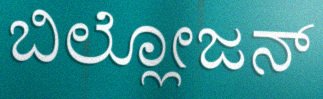
ಬಿಲ್ಲೋಜನ್